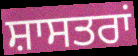
ਸ਼ਾਸਤਰਾਂ